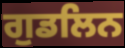
ਗੁਡਲਿਨ